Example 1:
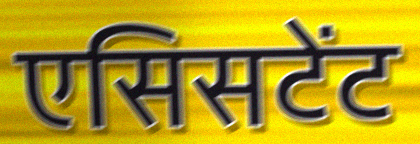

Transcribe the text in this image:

एसिसटेंट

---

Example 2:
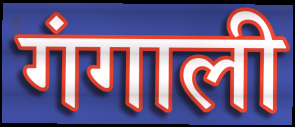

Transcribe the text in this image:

गंगाली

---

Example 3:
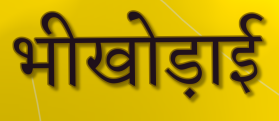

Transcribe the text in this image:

भीखोड़ाई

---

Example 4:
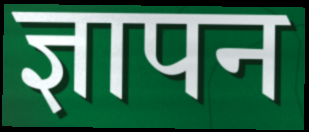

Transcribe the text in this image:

ज्ञापन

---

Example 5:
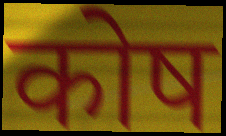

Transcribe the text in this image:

कोष